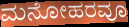
ಮನೋಹರವೂ